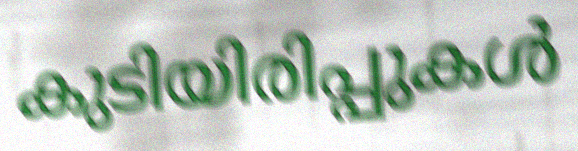
കുടിയിരിപ്പുകൾ